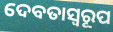
ଦେବତାସ୍ୱରୂପ